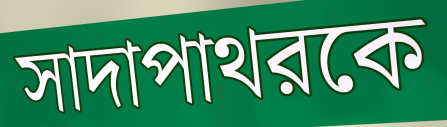
সাদাপাথরকে